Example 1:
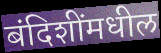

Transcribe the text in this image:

बंदिशींमधील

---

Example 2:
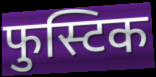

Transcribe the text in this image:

फुस्टिक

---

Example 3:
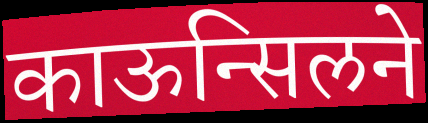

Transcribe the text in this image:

काऊन्सिलने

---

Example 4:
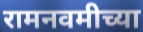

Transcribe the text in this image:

रामनवमीच्या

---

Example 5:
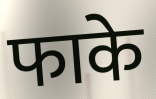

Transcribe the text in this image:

फाके